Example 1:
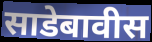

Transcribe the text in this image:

साडेबावीस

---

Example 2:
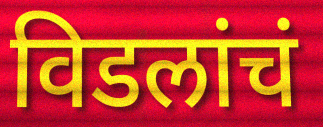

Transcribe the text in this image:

विडलांचं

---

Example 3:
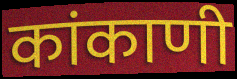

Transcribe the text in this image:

कांकाणी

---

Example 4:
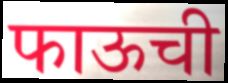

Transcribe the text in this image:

फाऊची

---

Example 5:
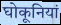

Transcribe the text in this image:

घोकूनियां